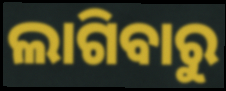
ଲାଗିବାରୁ